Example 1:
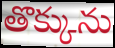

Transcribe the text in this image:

తొక్కును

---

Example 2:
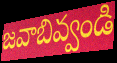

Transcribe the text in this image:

జవాబివ్వండి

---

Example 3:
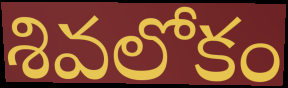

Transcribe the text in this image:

శివలోకం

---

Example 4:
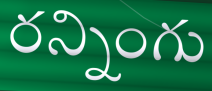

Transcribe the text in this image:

రన్నింగు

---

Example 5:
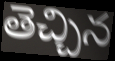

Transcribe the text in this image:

తెచ్చిన